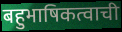
बहुभाषिकत्वाची